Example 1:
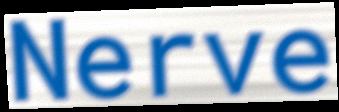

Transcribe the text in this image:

Nerve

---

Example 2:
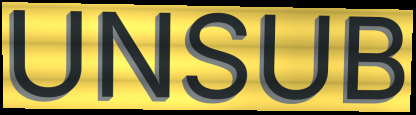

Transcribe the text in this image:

UNSUB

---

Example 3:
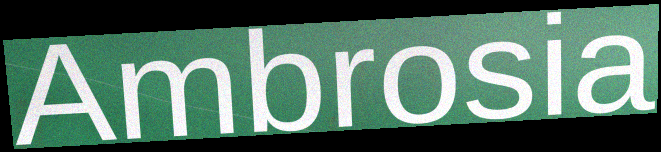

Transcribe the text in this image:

Ambrosia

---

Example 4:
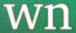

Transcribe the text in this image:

wn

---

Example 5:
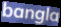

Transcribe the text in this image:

bangla